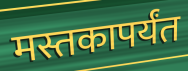
मस्तकापर्यंत